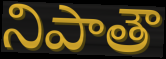
నిపాతౌ